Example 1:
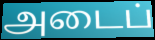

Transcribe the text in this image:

அடைப்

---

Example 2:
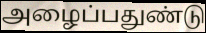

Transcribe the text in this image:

அழைப்பதுண்டு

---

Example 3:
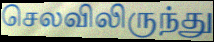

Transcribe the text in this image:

செலவிலிருந்து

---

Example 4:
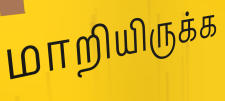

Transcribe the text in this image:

மாறியிருக்க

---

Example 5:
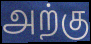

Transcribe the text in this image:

அற்கு